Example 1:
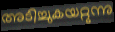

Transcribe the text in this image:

അടിച്ചുകയറ്റുന്നു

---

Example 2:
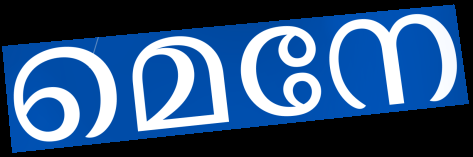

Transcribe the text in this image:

മെനേ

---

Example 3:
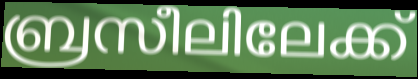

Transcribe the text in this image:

ബ്രസീലിലേക്ക്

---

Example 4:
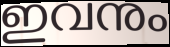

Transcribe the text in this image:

ഇവനും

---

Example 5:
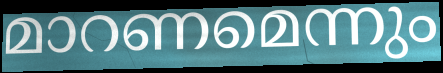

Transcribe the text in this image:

മാറണമെന്നും